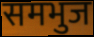
समभुज